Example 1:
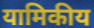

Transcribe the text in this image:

यामिकीय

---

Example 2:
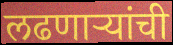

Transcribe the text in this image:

लढणाऱ्यांची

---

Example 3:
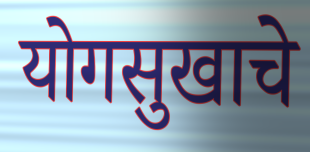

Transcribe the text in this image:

योगसुखाचे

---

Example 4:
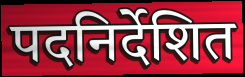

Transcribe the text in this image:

पदनिर्देशित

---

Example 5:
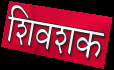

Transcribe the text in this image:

शिवशक